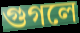
গুগলে